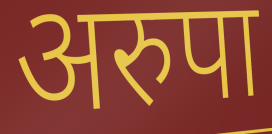
अरुपा